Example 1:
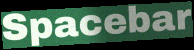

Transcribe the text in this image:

Spacebar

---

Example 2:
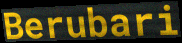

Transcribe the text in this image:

Berubari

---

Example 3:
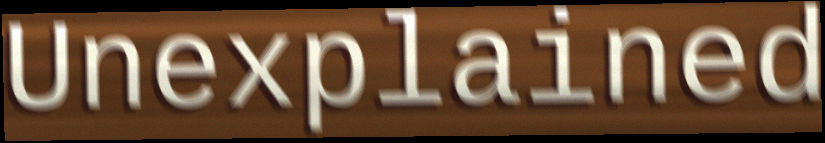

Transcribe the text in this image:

Unexplained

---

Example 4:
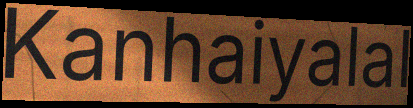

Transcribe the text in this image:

Kanhaiyalal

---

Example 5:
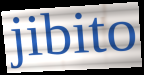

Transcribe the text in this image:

jibito